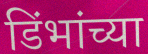
डिंभांच्या